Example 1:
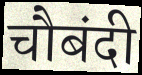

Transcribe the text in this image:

चौबंदी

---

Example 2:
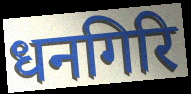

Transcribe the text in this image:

धनगिरि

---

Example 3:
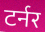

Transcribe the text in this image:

टर्नर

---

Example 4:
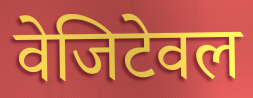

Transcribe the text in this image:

वेजिटेवल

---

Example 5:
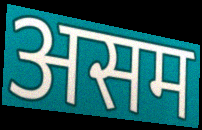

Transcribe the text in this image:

असम